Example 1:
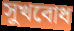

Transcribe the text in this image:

সুখবোধ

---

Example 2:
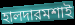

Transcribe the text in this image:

হালদারমশাই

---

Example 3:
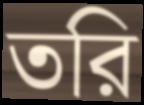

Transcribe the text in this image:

তরি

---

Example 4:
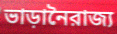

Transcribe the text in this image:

ভাড়ানৈরাজ্য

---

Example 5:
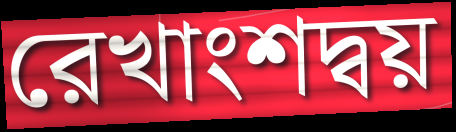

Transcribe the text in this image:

রেখাংশদ্বয়